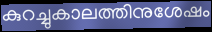
കുറച്ചുകാലത്തിനുശേഷം